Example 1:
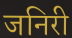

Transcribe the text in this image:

जनिरी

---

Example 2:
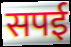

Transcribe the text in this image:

सपई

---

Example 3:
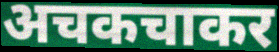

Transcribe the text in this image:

अचकचाकर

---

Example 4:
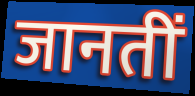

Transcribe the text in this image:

जानतीं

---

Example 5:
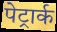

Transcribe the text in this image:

पेट्रार्क